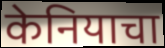
केनियाचा